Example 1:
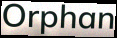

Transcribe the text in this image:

Orphan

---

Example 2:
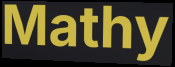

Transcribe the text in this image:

Mathy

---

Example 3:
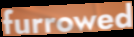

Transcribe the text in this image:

furrowed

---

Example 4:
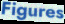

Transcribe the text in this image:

Figures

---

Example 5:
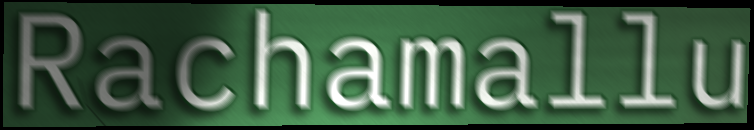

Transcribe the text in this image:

Rachamallu